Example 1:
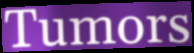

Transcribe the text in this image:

Tumors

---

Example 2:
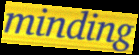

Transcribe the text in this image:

minding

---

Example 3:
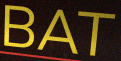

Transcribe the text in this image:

BAT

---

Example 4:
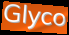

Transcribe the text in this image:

Glyco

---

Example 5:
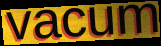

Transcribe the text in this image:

vacum